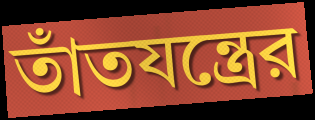
তাঁতযন্ত্রের